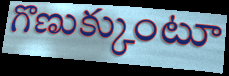
గొణుక్కుంటూ